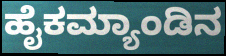
ಹೈಕಮ್ಯಾಂಡಿನ